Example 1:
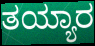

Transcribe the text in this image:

ತಯ್ಯಾರ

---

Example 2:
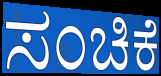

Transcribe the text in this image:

ಸಂಚಿಕೆ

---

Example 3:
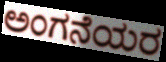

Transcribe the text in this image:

ಅಂಗನೆಯರ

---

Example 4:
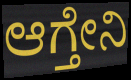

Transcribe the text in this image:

ಆಗ್ತೇನಿ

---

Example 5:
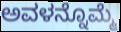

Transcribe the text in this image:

ಅವಳನ್ನೊಮ್ಮೆ